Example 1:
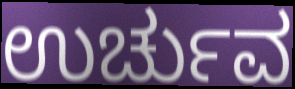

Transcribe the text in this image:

ಉರ್ಚುವ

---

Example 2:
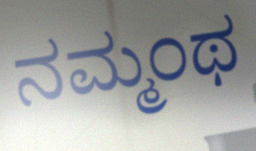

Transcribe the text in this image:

ನಮ್ಮಂಥ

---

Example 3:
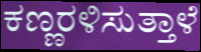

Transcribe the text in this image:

ಕಣ್ಣರಳಿಸುತ್ತಾಳೆ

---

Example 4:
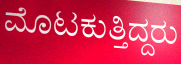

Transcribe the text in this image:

ಮೊಟಕುತ್ತಿದ್ದರು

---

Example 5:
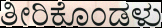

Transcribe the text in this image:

ತೀರಿಕೊಂಡಳು